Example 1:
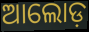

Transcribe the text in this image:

ଆଲୋଡ଼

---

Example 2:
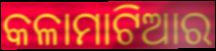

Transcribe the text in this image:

କଳାମାଟିଆର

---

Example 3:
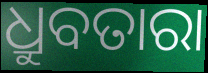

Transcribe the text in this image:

ଧ୍ରୁବତାରା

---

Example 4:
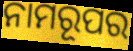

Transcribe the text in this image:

ନାମରୂପର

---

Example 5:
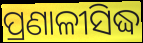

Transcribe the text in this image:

ପ୍ରଣାଳୀସିଦ୍ଧ